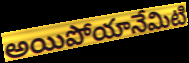
అయిపోయానేమిటి